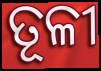
ତୂଳୀ